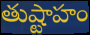
తుష్టాహం